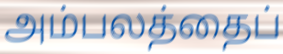
அம்பலத்தைப்